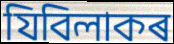
যিবিলাকৰ